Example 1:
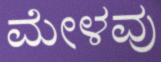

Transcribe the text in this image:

ಮೇಳವು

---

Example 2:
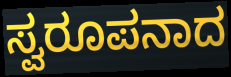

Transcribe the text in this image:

ಸ್ವರೂಪನಾದ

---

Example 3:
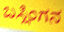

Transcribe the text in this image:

ಬಸ್ಲಿಂಗನ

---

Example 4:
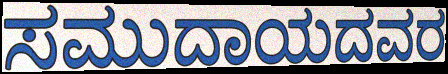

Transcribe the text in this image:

ಸಮುದಾಯದವರ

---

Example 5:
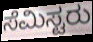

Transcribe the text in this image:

ಸೆಮಿಸ್ಟರು